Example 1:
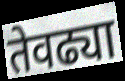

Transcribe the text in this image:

तेवढ्या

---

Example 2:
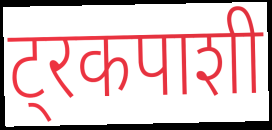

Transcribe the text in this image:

ट्रकपाशी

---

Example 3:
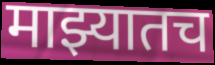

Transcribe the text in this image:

माझ्यातच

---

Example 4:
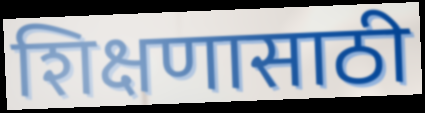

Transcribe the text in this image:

शिक्षणासाठी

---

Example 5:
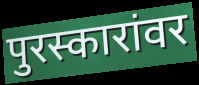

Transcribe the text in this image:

पुरस्कारांवर